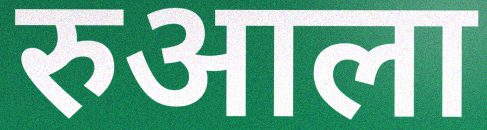
रुआला